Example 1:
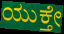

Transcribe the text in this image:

ಯುಕ್ತೇ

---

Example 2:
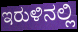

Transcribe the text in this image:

ಇರುಳಿನಲ್ಲಿ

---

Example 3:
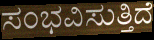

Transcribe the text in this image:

ಸಂಭವಿಸುತ್ತಿದೆ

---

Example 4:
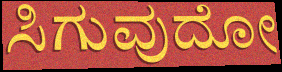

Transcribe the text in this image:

ಸಿಗುವುದೋ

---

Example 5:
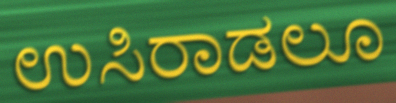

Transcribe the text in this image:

ಉಸಿರಾಡಲೂ